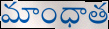
మాంధాత